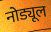
नोड्यूल